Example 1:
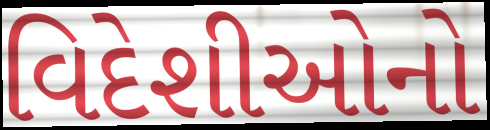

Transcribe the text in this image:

વિદેશીઓનો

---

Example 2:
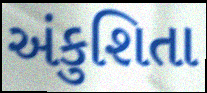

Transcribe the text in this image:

અંકુશિતા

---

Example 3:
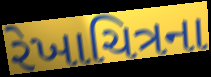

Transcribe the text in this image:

રેખાચિત્રના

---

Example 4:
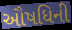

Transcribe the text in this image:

ઔષધિની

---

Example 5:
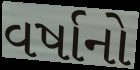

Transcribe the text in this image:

વર્ષાનો